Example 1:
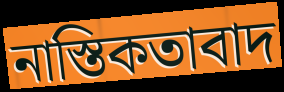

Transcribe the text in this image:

নাস্তিকতাবাদ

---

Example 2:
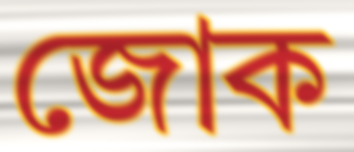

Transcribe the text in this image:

জোক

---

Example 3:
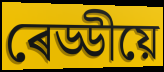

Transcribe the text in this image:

ৰেড্ডীয়ে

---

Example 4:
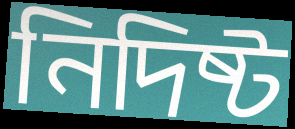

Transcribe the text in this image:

নিদিষ্ট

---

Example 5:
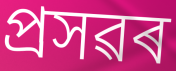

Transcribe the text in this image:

প্ৰসৱৰ